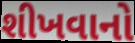
શીખવાનો